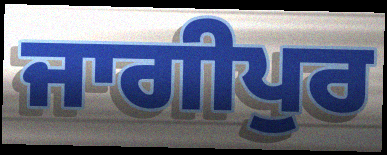
ਜਾਗੀਪੁਰ